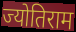
ज्योतिराम